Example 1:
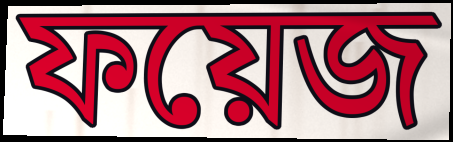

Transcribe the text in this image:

ফয়েজ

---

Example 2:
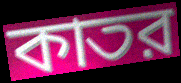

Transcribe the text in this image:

কাতর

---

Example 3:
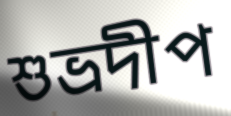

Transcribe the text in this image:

শুভ্রদীপ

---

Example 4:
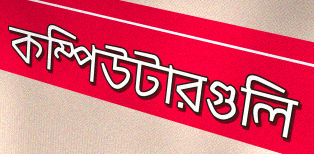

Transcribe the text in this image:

কম্পিউটারগুলি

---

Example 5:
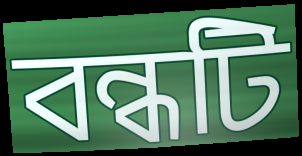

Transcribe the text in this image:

বন্ধটি